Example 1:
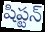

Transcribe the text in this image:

షిప్టన్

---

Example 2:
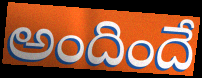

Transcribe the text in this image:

అందిందే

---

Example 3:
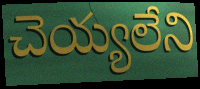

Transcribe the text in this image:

చెయ్యలేని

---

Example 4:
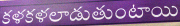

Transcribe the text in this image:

కళకళలాడుతుంటాయి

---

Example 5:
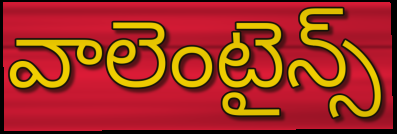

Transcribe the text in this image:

వాలెంటైన్స్